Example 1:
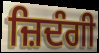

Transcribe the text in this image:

ਜ਼ਿਦੰਗੀ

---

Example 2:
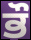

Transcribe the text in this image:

ਭੌ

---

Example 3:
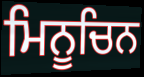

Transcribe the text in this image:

ਮਿਨੂਚਿਨ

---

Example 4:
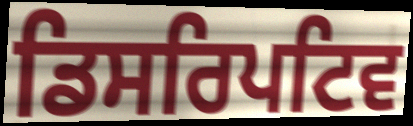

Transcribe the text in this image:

ਡਿਸਰਿਪਟਿਵ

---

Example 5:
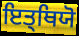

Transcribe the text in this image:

ਇਤ੍ਥਿਯੋ